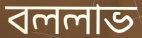
বললাভ